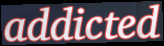
addicted